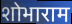
शोभाराम